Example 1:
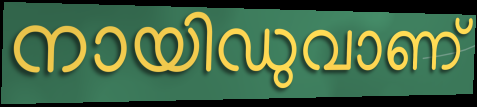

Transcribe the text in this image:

നായിഡുവാണ്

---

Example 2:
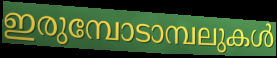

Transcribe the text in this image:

ഇരുമ്പോടാമ്പലുകൾ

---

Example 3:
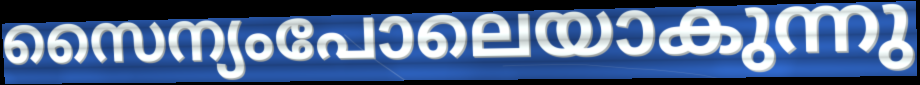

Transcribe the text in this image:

സൈന്യംപോലെയാകുന്നു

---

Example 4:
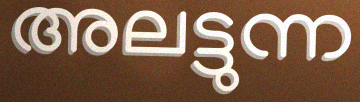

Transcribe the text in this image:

അലട്ടുന്ന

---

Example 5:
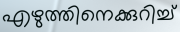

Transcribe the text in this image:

എഴുത്തിനെക്കുറിച്ച്